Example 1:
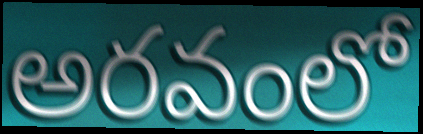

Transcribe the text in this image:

అరవంలో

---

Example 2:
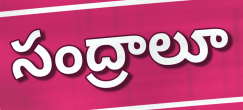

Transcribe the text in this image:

సంద్రాలూ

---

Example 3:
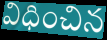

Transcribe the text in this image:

విధించిన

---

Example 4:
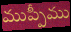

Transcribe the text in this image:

ముప్పీము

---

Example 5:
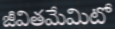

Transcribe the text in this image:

జీవితమేమిటో